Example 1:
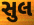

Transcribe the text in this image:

સુલ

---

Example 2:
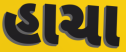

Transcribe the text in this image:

હાચા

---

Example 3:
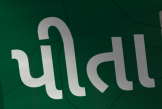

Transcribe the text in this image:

પીતા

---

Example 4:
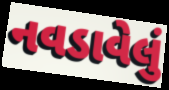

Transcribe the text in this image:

નવડાવેલું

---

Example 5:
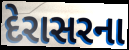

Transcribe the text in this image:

દેરાસરના